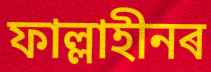
ফাল্লাহীনৰ